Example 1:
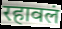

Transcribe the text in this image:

रहावलं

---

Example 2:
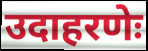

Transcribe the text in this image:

उदाहरणेः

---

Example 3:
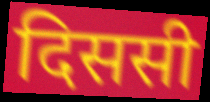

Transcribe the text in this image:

दिससी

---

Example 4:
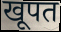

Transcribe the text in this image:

खूपत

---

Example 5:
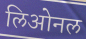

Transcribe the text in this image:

लिओनल